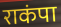
राकंपा